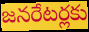
జనరేటర్లకు